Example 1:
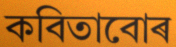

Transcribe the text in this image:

কবিতাবোৰ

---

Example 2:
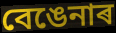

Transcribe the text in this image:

বেঙেনাৰ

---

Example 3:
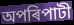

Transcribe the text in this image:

অপৰিপাটী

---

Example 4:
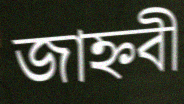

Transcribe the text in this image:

জাহ্নবী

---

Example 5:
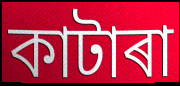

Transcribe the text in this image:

কাটাৰা